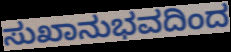
ಸುಖಾನುಭವದಿಂದ